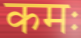
कमः